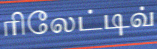
ரிலேட்டிவ்